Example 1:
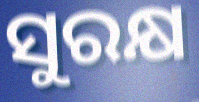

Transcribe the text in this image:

ସୁରକ୍ଷ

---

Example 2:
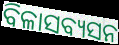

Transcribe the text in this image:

ବିଳାସବ୍ୟସନ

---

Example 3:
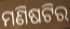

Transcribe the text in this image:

ମଣିଷଟିର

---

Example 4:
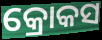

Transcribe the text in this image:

କ୍ରୋକସ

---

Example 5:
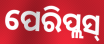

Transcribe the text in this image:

ପେରିପ୍ଲସ୍